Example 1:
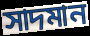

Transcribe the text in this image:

সাদমান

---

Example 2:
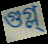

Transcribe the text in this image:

গুগ্ল্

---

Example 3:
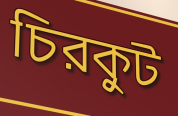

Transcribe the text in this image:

চিরকুট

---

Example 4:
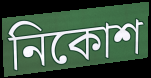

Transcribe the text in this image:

নিকোশ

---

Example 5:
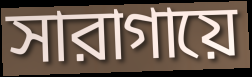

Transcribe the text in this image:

সারাগায়ে